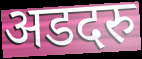
अडदरु